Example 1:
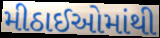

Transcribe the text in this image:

મીઠાઈઓમાંથી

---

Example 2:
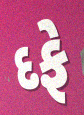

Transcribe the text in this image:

દફે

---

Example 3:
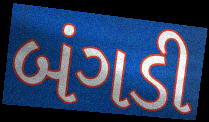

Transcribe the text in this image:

બંગડી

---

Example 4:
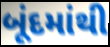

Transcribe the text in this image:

બૂંદમાંથી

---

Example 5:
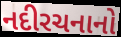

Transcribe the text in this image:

નદીરચનાનો